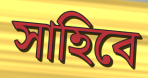
সাহিবে